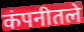
कंपनीतले